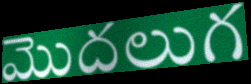
మొదలుగ